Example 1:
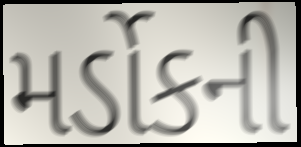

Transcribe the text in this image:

મર્ડોકની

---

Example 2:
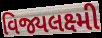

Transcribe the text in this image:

વિજ્યલક્ષ્મી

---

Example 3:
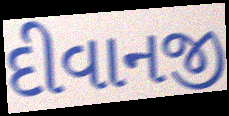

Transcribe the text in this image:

દીવાનજી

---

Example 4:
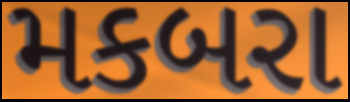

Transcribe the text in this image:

મકબરા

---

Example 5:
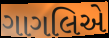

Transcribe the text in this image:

ગાગલિએ